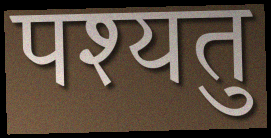
पश्यतु